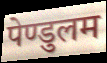
पेण्डुलम